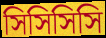
সিসিসিসি